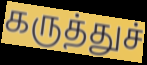
கருத்துச்